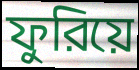
ফুরিয়ে